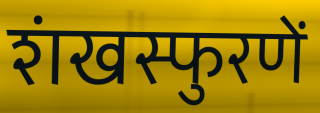
शंखस्फुरणें